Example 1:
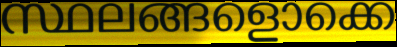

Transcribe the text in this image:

സ്ഥലങ്ങളൊക്കെ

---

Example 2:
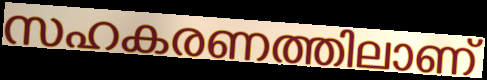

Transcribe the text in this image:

സഹകരണത്തിലാണ്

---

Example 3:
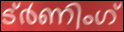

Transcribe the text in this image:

ട്ർണിംഗ്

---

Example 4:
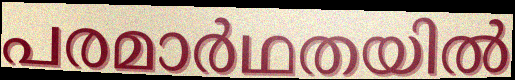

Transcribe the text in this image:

പരമാർഥതയിൽ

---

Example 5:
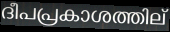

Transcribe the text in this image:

ദീപപ്രകാശത്തില്